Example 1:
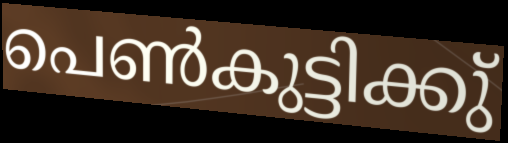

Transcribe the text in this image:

പെൺകുട്ടിക്കു്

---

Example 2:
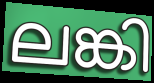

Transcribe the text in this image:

ലങ്കി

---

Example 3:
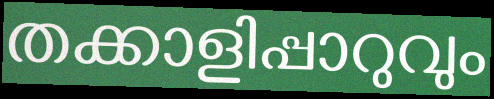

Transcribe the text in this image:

തക്കാളിപ്പാറുവും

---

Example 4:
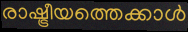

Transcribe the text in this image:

രാഷ്ട്രീയത്തെക്കാൾ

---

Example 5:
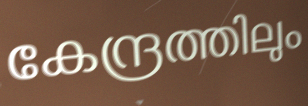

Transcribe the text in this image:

കേന്ദ്രത്തിലും